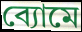
ব্যোমে